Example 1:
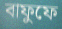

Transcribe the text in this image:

বাফুফে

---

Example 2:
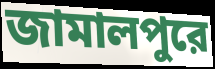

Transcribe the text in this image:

জামালপুরে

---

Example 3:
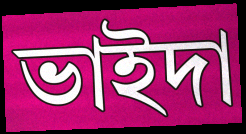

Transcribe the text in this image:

ভাইদা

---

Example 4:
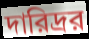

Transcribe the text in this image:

দারিদ্রর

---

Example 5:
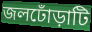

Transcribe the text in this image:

জলঢোঁড়াটি